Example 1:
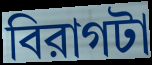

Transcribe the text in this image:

বিরাগটা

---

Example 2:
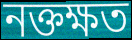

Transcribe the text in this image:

নক্তক্ষত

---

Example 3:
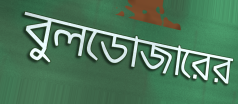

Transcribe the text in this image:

বুলডোজারের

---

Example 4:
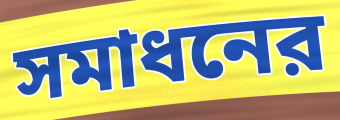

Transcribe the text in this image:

সমাধনের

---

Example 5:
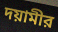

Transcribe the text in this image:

দয়ামীর